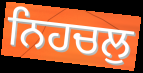
ਨਿਹਚਲੁ